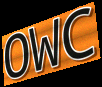
OWC